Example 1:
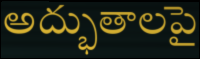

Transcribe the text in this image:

అద్భుతాలపై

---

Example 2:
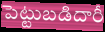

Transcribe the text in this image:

పెట్టుబడిదారీ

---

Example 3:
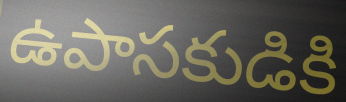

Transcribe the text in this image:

ఉపాసకుడికి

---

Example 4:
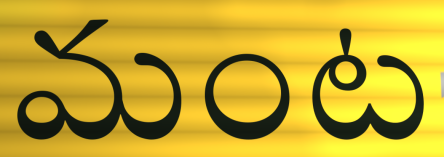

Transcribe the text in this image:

మంట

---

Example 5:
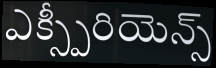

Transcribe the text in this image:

ఎక్స్పీరియెన్స్